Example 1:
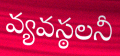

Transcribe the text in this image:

వ్యవస్ఠలనీ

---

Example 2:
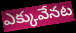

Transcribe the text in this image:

ఎక్కువేనట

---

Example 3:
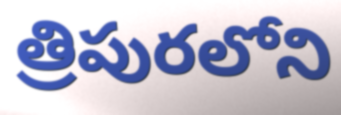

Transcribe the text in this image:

త్రిపురలోని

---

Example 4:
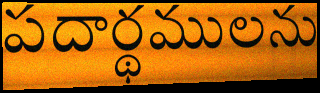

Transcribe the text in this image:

పదార్థములను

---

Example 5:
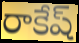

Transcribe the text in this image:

రాకేష్